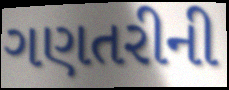
ગણતરીની